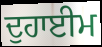
ਦੁਹਾਈਮ